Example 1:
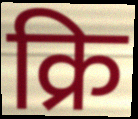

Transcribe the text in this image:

क्रि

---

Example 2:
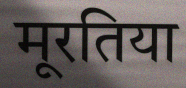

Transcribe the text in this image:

मूरतिया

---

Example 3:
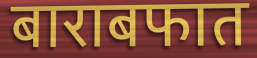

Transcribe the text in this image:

बाराबफात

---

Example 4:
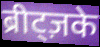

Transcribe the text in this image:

ब्रीट्ज़के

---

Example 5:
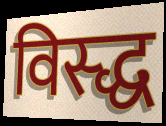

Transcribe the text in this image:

विस्द्ध